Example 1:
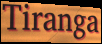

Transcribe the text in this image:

Tiranga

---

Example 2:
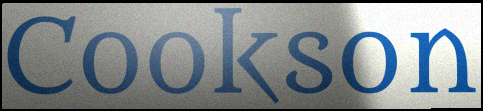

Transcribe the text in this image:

Cookson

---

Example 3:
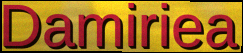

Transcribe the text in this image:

Damiriea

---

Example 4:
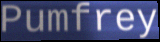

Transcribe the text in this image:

Pumfrey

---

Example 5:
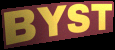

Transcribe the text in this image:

BYST